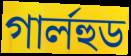
গার্লহুড